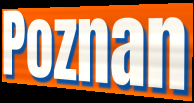
Poznan